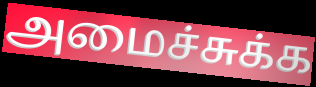
அமைச்சுக்க